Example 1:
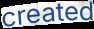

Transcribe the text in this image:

created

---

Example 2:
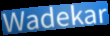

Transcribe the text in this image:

Wadekar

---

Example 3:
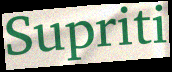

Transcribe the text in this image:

Supriti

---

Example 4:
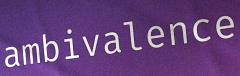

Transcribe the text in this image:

ambivalence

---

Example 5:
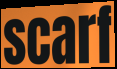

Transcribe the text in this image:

scarf